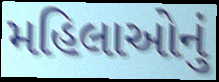
મહિલાઓનું